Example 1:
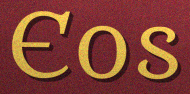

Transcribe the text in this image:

Eos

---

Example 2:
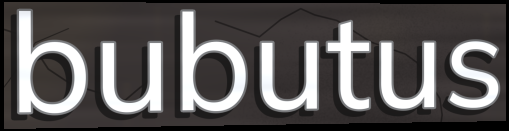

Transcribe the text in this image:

bubutus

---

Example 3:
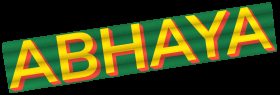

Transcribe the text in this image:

ABHAYA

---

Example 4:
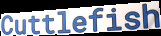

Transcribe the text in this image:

Cuttlefish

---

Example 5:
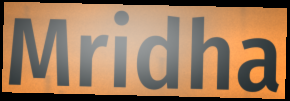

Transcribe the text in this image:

Mridha